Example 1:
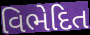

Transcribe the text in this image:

વિભેદિત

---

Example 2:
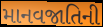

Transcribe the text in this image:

માનવજાતિની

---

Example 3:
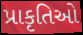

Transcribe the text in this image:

પ્રાકૃતિઓ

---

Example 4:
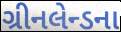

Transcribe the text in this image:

ગ્રીનલેન્ડના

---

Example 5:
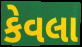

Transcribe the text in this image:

કેવલા